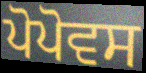
ਪੋਪੋਵਸ